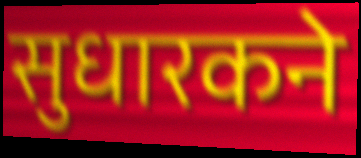
सुधारकने